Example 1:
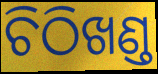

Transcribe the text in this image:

ଚିଠିଖଣ୍ଡ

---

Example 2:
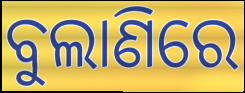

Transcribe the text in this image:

ବୁଲାଣିରେ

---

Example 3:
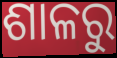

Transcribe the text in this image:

ଶାଳରୁ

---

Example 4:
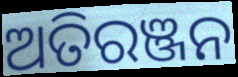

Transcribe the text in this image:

ଅତିରଞ୍ଜନ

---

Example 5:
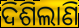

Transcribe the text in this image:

ଦିଶିଲାଣି